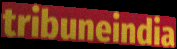
tribuneindia